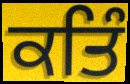
ਕਤਿੰ